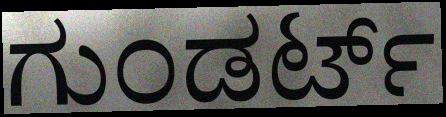
ಗುಂಡರ್ಟ್